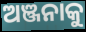
ଅଞ୍ଜନାକୁ